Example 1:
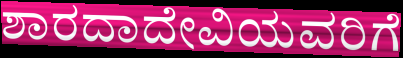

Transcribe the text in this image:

ಶಾರದಾದೇವಿಯವರಿಗೆ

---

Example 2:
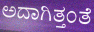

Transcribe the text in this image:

ಅದಾಗಿತ್ತಂತೆ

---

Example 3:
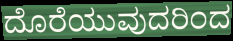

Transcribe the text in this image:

ದೊರೆಯುವುದರಿಂದ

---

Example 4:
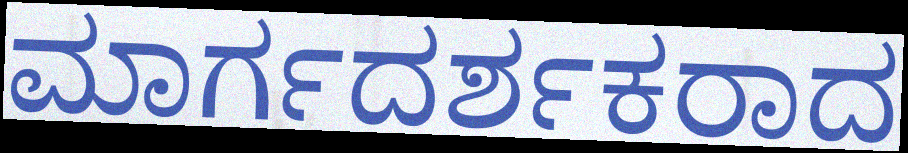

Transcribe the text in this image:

ಮಾರ್ಗದರ್ಶಕರಾದ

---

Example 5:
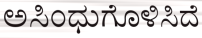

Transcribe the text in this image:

ಅಸಿಂಧುಗೊಳಿಸಿದೆ